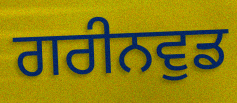
ਗਰੀਨਵੁਡ